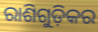
ରାଶିଗୁଡ଼ିକର